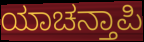
ಯಾಚನ್ತಾಪಿ